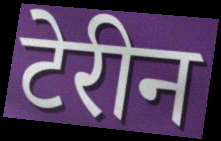
टेरीन